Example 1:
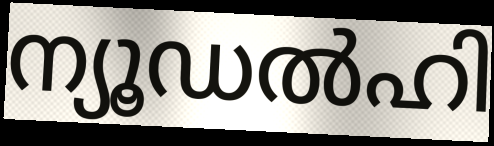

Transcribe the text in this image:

ന്യൂഡൽഹി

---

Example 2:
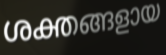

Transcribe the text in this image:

ശക്തങ്ങളായ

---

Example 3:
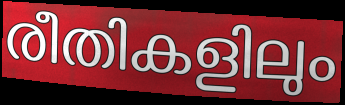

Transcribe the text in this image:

രീതികളിലും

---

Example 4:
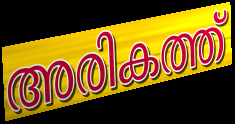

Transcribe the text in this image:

അരികത്ത്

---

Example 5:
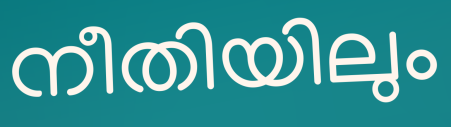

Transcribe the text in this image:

നീതിയിലും